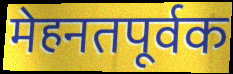
मेहनतपूर्वक